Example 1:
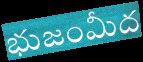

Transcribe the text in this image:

భుజంమీద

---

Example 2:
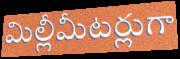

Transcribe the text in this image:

మిల్లీమీటర్లుగా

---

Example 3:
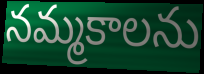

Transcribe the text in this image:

నమ్మకాలను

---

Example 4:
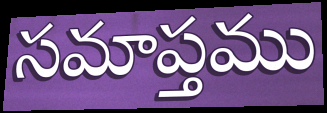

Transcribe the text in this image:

సమాప్తము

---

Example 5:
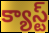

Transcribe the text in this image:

క్యాస్ట్